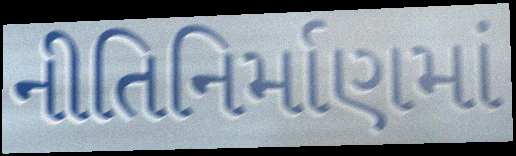
નીતિનિર્માણમાં